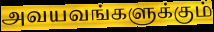
அவயவங்களுக்கும்